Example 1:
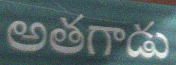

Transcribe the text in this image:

అతగాడు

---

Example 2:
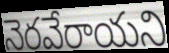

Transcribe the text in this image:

నెరవేరాయని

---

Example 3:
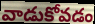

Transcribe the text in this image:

వాడుకోవడం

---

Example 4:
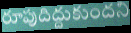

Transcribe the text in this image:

రూపుదిద్దుకుందని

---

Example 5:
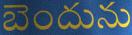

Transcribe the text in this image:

బెందును